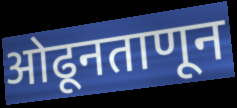
ओढूनताणून